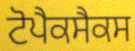
ਟੋਪੈਕਸੈਕਸ